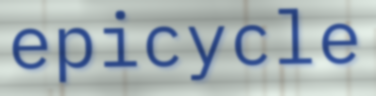
epicycle